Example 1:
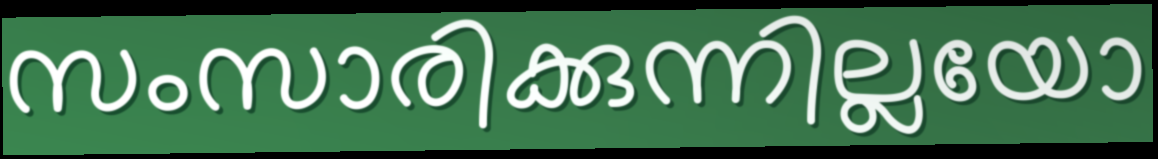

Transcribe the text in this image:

സംസാരിക്കുന്നില്ലയോ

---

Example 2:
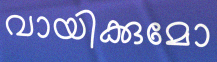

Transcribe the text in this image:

വായിക്കുമോ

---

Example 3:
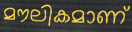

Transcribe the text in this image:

മൗലികമാണ്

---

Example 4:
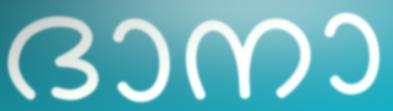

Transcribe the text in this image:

ദാനാ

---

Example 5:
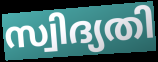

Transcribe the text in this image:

സ്വിദ്യതി